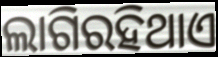
ଲାଗିରହିଥାଏ